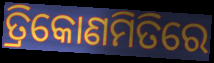
ତ୍ରିକୋଣମିତିରେ